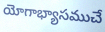
యోగాభ్యాసముచే